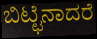
ಬಿಟ್ಟೆನಾದರೆ